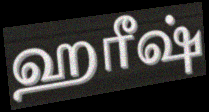
ஹரீஷ்